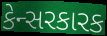
કેન્સરકારક